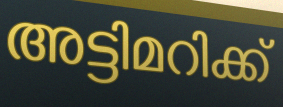
അട്ടിമറിക്ക്